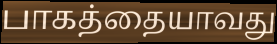
பாகத்தையாவது